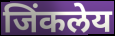
जिंकलेय